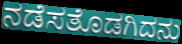
ನಡೆಸತೊಡಗಿದನು